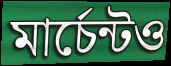
মার্চেন্টও